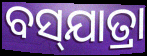
ବସ୍‌ଯାତ୍ରା